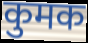
कुमक